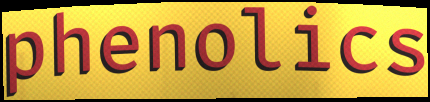
phenolics